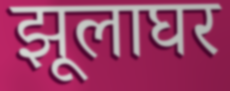
झूलाघर